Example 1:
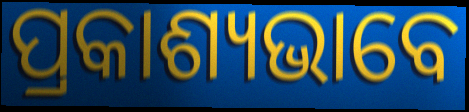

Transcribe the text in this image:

ପ୍ରକାଶ୍ୟଭାବେ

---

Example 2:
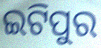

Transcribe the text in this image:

ଇଟିପୁର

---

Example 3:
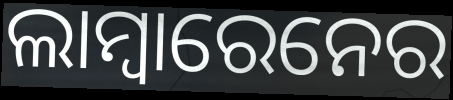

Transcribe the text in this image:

ଲାମ୍ବାରେନେର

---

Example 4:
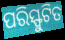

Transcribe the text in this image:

ପରିସ୍ଫୁଟିତ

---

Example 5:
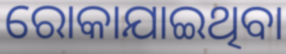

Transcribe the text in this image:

ରୋକାଯାଇଥିବା